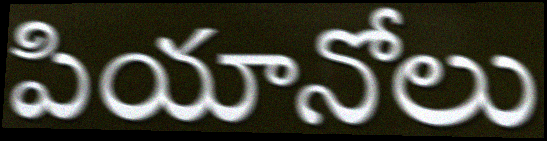
పియానోలు